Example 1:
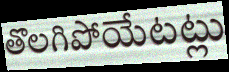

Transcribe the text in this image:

తొలగిపోయేటట్లు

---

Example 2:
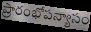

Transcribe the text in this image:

ప్రారంభోపన్యాసం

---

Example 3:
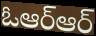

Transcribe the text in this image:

ఓఆర్ఆర్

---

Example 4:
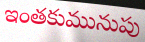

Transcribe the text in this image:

ఇంతకుమునుపు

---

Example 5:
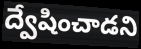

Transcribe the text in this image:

ద్వేషించాడని